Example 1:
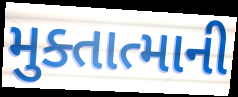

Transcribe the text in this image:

મુક્તાત્માની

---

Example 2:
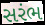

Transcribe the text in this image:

સરંભ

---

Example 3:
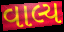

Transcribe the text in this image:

વાલ્ય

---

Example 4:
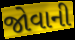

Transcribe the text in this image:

જોવાની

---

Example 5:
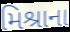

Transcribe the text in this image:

મિશ્રાના